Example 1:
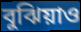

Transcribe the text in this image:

বুঝিয়াও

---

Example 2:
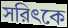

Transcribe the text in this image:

সরিৎকে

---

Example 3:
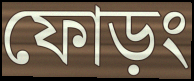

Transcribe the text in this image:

ফোড়ং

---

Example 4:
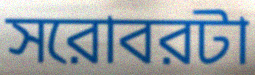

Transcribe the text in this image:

সরোবরটা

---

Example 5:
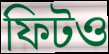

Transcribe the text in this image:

ফিটও